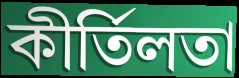
কীৰ্তিলতা